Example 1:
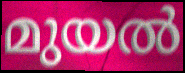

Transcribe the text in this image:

മുയൽ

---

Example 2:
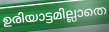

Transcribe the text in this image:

ഉരിയാട്ടമില്ലാതെ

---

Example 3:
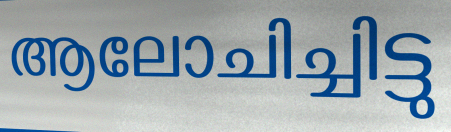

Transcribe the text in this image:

ആലോചിച്ചിട്ടു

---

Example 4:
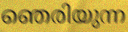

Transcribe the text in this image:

ഞെരിയുന്ന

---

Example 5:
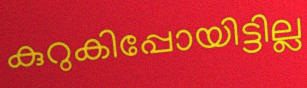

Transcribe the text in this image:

കുറുകിപ്പോയിട്ടില്ല